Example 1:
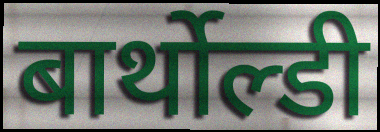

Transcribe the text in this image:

बार्थोल्डी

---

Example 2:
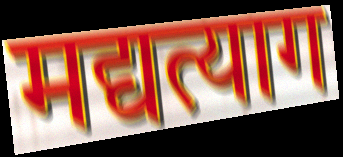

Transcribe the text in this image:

मद्यत्याग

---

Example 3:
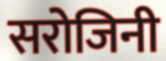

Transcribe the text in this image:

सरोजिनी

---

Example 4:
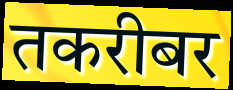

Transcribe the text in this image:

तकरीबर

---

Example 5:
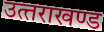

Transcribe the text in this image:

उत्‍तराखण्‍ड